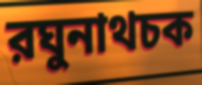
রঘুনাথচক